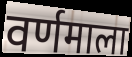
वर्णमाला